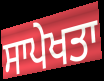
ਸਾਪੇਖਤਾ